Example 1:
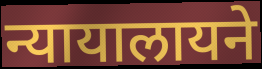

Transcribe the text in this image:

न्यायालायने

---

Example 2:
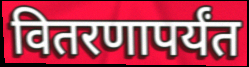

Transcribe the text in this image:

वितरणापर्यंत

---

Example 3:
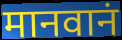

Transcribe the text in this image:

मानवानं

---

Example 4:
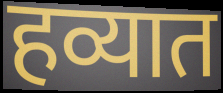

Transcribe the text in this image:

हव्यात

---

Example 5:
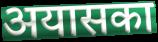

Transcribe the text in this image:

अयासका